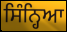
ਸਿੰਨ੍ਹਿਆ